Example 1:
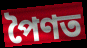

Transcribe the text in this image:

পৈণত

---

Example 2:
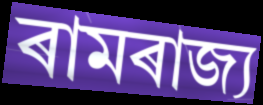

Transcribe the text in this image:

ৰামৰাজ্য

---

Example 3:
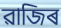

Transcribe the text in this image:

ৱাজিৰ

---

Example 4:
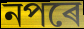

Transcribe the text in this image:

নপৰে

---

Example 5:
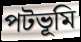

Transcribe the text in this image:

পটভূমি